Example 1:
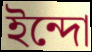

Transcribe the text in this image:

ইন্দো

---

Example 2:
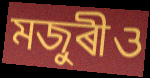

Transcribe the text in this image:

মজুৰীও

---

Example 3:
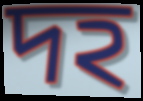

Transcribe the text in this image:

দহ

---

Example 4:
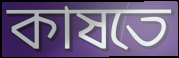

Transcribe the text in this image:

কাষতে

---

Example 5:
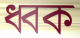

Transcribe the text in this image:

ধ্বক